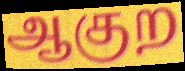
ஆகுற